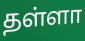
தள்ளா